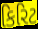
કિરિટ